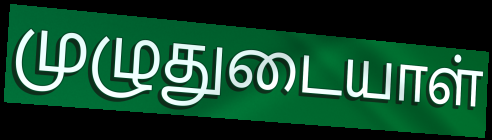
முழுதுடையாள்